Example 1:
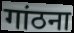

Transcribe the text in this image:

गांठना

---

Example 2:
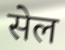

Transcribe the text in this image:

सेल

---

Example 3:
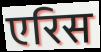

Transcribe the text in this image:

एरिस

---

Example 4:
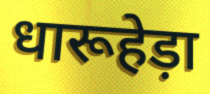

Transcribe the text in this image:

धारूहेड़ा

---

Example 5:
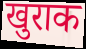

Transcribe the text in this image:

खुराक